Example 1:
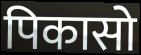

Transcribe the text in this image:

पिकासो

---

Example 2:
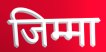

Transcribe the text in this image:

जिम्मा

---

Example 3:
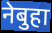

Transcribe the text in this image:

नेबुहा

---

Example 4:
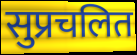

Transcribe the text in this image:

सुप्रचलित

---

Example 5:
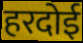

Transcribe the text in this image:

हरदोई